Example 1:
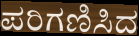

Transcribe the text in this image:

ಪರಿಗಣಿಸಿದ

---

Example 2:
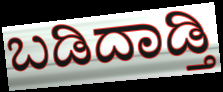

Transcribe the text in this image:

ಬಡಿದಾಡ್ತಿ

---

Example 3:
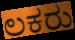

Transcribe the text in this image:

ಲಕರು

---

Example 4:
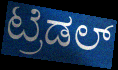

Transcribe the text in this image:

ಟ್ರೆಡಲ್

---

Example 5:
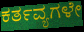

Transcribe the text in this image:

ಕರ್ತವ್ಯಗಳೇ